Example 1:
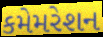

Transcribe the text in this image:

કમેમરેશન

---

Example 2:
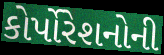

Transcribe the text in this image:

કોર્પોરેશનોની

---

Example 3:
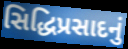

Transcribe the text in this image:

સિદ્ધિપ્રસાદનું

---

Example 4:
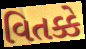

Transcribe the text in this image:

વિતક્કે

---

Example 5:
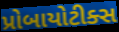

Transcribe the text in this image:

પ્રોબાયોટીક્સ